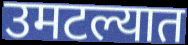
उमटल्यात